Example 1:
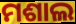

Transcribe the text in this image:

ମଶାଲ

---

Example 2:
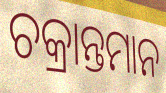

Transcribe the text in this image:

ଚକ୍ରାନ୍ତମାନ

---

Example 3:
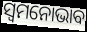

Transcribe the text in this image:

ସ୍ୱମନୋଭାବ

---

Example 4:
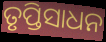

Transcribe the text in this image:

ତୃପ୍ତିସାଧନ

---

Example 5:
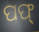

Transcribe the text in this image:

ପଫ୍